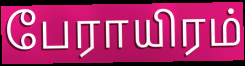
பேராயிரம்